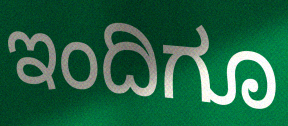
ಇಂದಿಗೂ